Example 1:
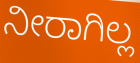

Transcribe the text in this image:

ನೀರಾಗಿಲ್ಲ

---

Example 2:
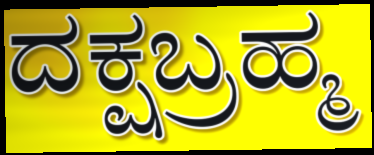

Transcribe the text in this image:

ದಕ್ಷಬ್ರಹ್ಮ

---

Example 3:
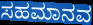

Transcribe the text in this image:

ಸಹಮಾನವ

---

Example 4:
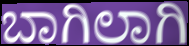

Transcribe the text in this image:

ಬಾಗಿಲಾಗಿ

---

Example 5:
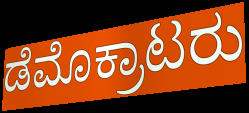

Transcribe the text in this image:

ಡೆಮೊಕ್ರಾಟರು